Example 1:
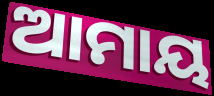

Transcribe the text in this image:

ଆମାୟ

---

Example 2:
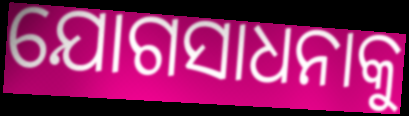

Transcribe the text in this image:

ଯୋଗସାଧନାକୁ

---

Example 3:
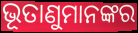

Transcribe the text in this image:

ଭୂତାଣୁମାନଙ୍କର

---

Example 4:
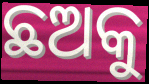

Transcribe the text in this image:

ଛଅକୁ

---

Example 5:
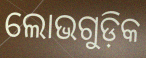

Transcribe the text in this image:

ଲୋଭଗୁଡ଼ିକ